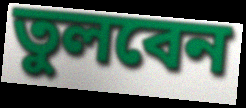
তুলবেন